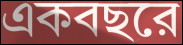
একবছরে